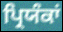
ਪ੍ਰਿਯੰਕਾਂ